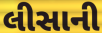
લીસાની